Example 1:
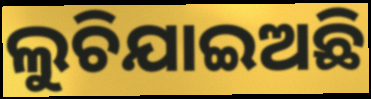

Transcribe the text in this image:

ଲୁଚିଯାଇଅଛି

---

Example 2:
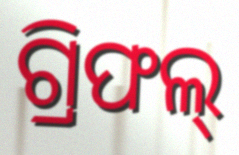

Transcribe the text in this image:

ଗ୍ରିଫଲ୍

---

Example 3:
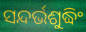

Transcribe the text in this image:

ସନ୍ଦର୍ଭଶୁଦ୍ଧିଂ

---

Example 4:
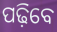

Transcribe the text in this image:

ପଢ଼ିବେ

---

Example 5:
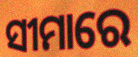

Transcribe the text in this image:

ସୀମାରେ